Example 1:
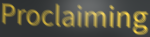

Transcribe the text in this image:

Proclaiming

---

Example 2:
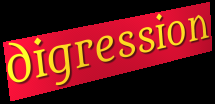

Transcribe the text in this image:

digression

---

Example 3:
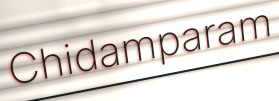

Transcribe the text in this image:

Chidamparam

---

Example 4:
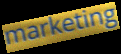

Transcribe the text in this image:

marketing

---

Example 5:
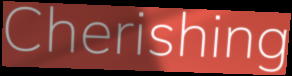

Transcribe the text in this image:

Cherishing